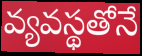
వ్యవస్థతోనే